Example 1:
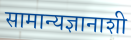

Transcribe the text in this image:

सामान्यज्ञानाशी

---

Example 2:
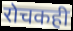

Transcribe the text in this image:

रोचकही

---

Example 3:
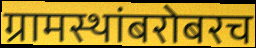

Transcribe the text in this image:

ग्रामस्थांबरोबरच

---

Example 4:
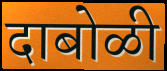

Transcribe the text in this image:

दाबोळी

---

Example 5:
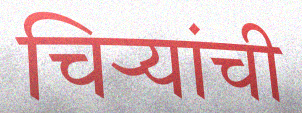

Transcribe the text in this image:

चिऱ्यांची